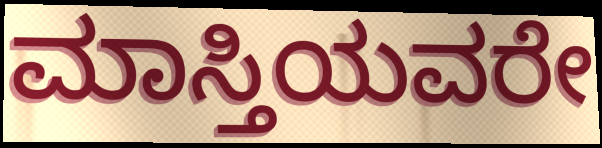
ಮಾಸ್ತಿಯವರೇ